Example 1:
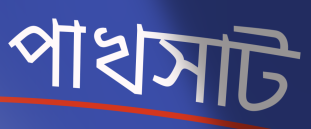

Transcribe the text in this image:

পাখসাট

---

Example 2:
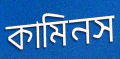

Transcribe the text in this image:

কামিনস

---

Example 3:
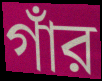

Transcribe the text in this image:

গাঁর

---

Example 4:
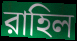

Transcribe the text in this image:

রাহিল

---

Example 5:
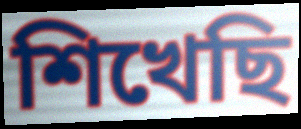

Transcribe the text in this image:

শিখেছি